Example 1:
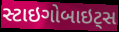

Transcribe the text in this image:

સ્ટાઇગોબાઇટ્સ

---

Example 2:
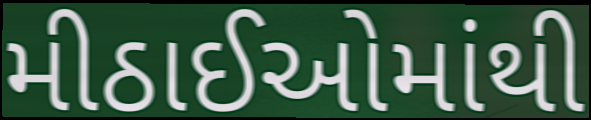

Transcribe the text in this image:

મીઠાઈઓમાંથી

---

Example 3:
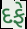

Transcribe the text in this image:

દફે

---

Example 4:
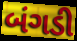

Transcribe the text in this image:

બંગડી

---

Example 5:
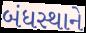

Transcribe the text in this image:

બંધસ્થાને